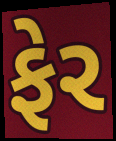
ફેર